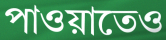
পাওয়াতেও